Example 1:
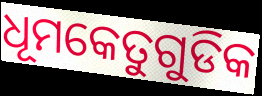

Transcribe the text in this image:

ଧୂମକେତୁଗୁଡିକ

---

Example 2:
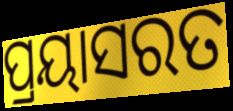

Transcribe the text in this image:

ପ୍ରୟାସରତ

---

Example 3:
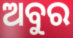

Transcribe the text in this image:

ଅବୁର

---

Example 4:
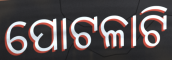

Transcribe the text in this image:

ପୋଟଳାଟି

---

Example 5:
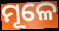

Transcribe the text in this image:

ମୂଳେ